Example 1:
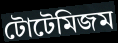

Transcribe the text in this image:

টোটেমিজম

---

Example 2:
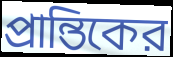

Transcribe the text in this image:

প্রান্তিকের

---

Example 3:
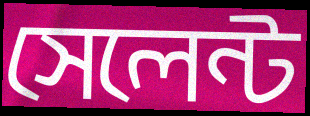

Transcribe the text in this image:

সেলেন্ট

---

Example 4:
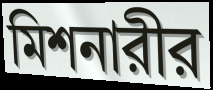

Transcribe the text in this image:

মিশনারীর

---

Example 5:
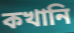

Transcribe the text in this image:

কখানি